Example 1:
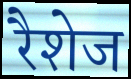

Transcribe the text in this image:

रैशेज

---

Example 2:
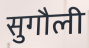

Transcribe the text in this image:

सुगौली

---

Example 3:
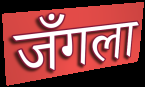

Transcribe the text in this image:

जँगला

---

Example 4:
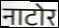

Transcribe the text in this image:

नाटोर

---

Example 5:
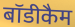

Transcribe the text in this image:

बॉडीकैम